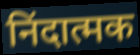
निंदात्मक